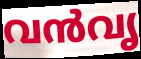
വൻവൃ